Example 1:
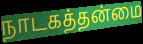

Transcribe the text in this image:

நாடகத்தன்மை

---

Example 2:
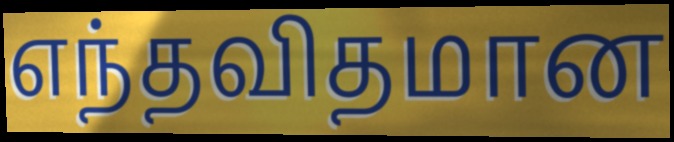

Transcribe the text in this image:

எந்தவிதமான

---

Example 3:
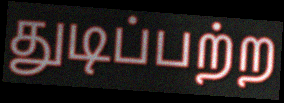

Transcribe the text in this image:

துடிப்பற்ற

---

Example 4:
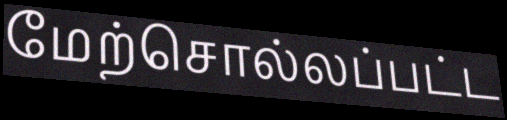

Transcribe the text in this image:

மேற்சொல்லப்பட்ட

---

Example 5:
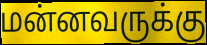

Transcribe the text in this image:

மன்னவருக்கு